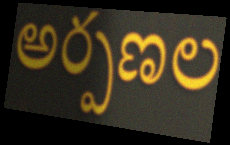
అర్పణల